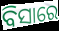
ବିସାରେ